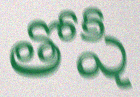
తోషీ